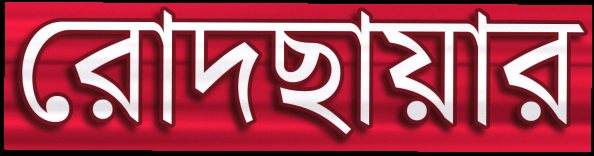
রোদছায়ার